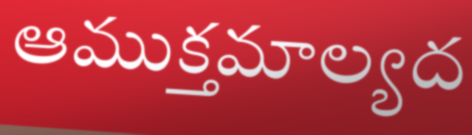
ఆముక్తమాల్యద